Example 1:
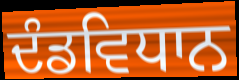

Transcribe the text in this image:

ਦੰਡਵਿਧਾਨ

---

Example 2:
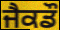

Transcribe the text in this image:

ਜੈਕਡੌ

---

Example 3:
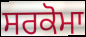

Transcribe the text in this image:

ਸਰਕੋਮਾ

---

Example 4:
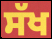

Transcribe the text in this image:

ਸੱਖ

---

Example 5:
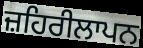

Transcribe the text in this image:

ਜ਼ਹਿਰੀਲਾਪਨ